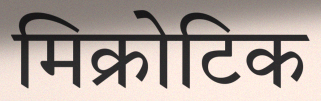
मिक्रोटिक